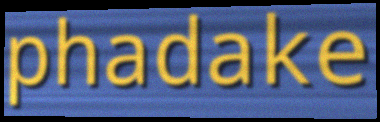
phadake